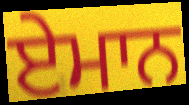
ਏਮਾਨ